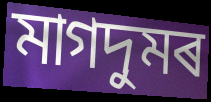
মাগদুমৰ